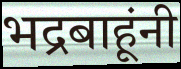
भद्रबाहूंनी